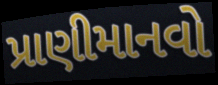
પ્રાણીમાનવો